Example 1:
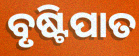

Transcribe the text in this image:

ବୃଷ୍ଟିପାତ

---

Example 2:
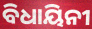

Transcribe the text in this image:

ବିଧାୟିନୀ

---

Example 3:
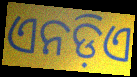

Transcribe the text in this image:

ଏନଡ଼ିଏ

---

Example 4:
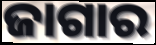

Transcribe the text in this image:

ଜାଗାର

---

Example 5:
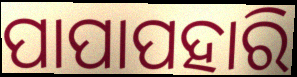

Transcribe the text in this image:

ପାପାପହାରି